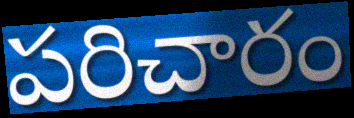
పరిచారం